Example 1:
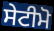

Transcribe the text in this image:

ਸੇਟੀਮੋ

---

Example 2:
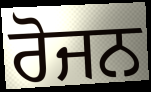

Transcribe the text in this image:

ਰੋਜਨ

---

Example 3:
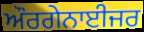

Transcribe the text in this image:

ਔਰਗੇਨਾਈਜਰ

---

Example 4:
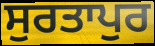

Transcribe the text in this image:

ਸੁਰਤਾਪੁਰ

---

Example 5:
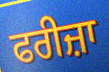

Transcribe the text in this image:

ਫਰੀਜ਼ਾ